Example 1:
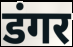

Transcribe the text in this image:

डंगर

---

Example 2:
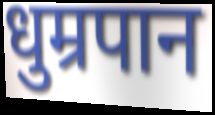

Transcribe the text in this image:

धुम्रपान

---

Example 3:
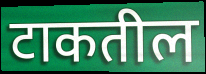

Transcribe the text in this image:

टाकतील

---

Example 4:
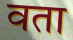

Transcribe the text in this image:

वता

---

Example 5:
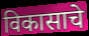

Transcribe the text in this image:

विकासाचे